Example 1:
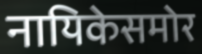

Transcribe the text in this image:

नायिकेसमोर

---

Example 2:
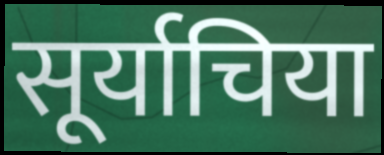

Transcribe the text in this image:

सूर्याचिया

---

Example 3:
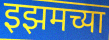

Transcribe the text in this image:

इझमच्या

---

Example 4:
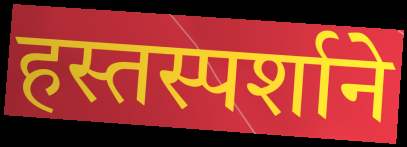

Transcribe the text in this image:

हस्तस्पर्शाने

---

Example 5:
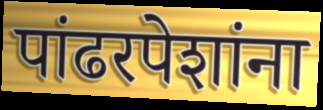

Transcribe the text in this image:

पांढरपेशांना